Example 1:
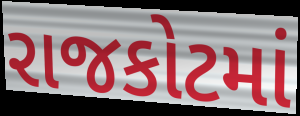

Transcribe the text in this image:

રાજકોટમાં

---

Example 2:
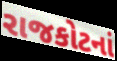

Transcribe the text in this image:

રાજકોટનાં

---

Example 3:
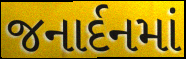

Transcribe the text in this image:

જનાર્દનમાં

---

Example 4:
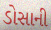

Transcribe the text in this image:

ડોસાની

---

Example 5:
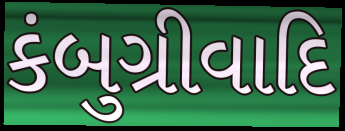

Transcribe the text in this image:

કંબુગ્રીવાદિ